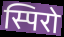
स्पिरो